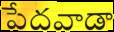
పేదవాడా